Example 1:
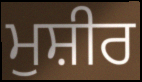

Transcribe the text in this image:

ਮੁਸ਼ੀਰ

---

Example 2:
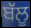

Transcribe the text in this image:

ਬੱਲੂ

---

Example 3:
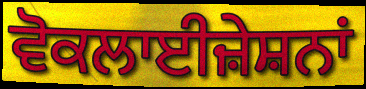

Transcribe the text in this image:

ਵੋਕਲਾਈਜ਼ੇਸ਼ਨਾਂ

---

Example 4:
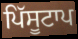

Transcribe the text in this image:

ਪਿੱਸੂਟਾਪ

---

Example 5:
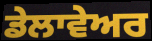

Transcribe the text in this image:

ਡੇਲਾਵੇਅਰ